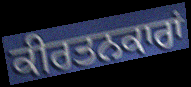
ਕੀਰਤਨਕਾਰਾਂ